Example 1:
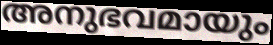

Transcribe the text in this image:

അനുഭവമായും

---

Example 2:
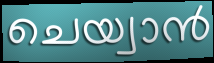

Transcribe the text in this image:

ചെയ്വാൻ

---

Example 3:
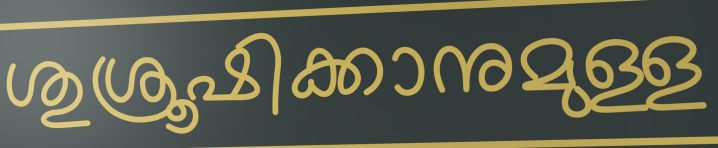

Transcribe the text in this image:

ശുശ്രൂഷിക്കാനുമുള്ള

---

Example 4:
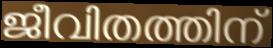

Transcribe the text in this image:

ജീവിതത്തിന്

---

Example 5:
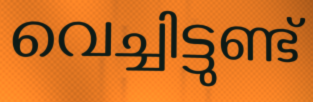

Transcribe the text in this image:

വെച്ചിട്ടുണ്ട്